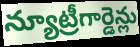
న్యూట్రీగార్డెన్లు